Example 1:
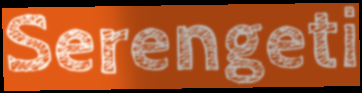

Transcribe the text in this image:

Serengeti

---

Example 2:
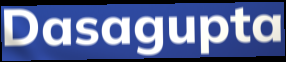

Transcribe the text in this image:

Dasagupta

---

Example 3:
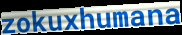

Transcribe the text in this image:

zokuxhumana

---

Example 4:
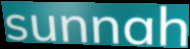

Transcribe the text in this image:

sunnah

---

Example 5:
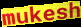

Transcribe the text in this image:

mukesh